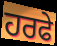
ਹਰਫੇ